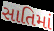
સાતિમાં